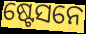
ଷ୍ଟେସନେ